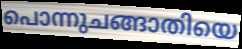
പൊന്നുചങ്ങാതിയെ